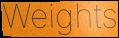
Weights